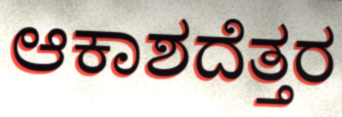
ಆಕಾಶದೆತ್ತರ